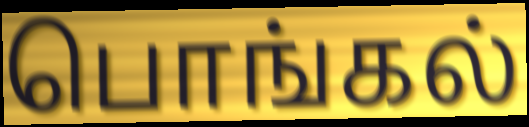
பொங்கல்